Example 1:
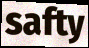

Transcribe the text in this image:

safty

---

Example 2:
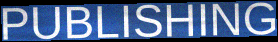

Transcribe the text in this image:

PUBLISHING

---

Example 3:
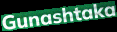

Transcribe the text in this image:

Gunashtaka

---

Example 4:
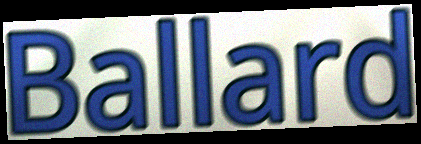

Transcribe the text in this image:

Ballard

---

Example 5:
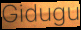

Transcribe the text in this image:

Gidugu